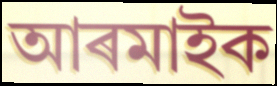
আৰমাইক